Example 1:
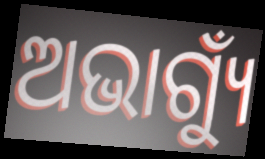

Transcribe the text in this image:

ଅଭାଗ୍ୟୁଁ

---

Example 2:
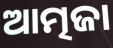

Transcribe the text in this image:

ଆତ୍ମଜା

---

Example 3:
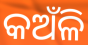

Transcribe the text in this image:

କଅଁଳି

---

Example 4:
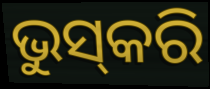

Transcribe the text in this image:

ଭୁସ୍‌କରି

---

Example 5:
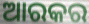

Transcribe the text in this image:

ଆରକର